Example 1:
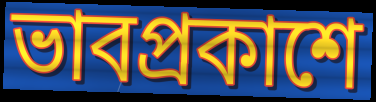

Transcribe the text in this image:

ভাবপ্রকাশে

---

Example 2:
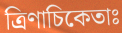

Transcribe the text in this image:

ত্রিণাচিকেতাঃ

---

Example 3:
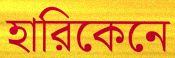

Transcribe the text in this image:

হারিকেনে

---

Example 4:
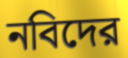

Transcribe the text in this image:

নবিদের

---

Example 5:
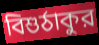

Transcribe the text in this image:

বিশুঠাকুর